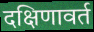
दक्षिणावर्त